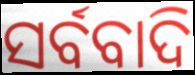
ସର୍ବବାଦି